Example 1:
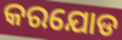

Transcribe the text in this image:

କରଯୋଡ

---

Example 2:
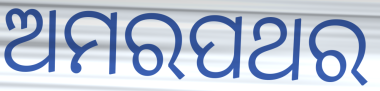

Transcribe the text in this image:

ଅମରପଥର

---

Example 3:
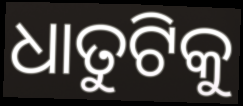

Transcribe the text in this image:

ଧାତୁଟିକୁ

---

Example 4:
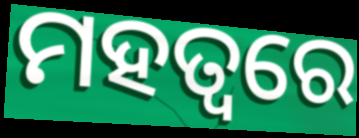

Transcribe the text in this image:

ମହତ୍ୱରେ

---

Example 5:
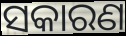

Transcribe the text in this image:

ସକାରଣ